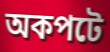
অকপটে